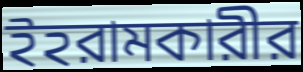
ইহরামকারীর